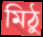
মিঠু